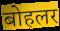
बोहलर